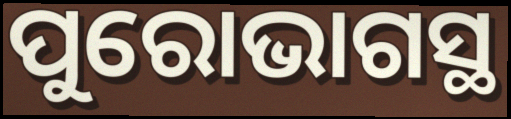
ପୁରୋଭାଗସ୍ଥ